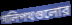
গলিপথগুলোর